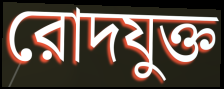
রোদযুক্ত